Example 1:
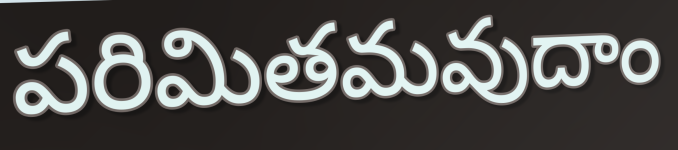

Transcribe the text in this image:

పరిమితమవుదాం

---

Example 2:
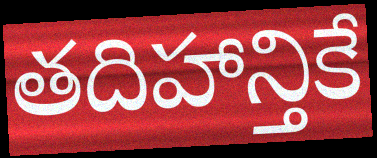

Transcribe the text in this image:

తదిహాన్తికే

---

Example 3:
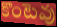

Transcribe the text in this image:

కొంటెవు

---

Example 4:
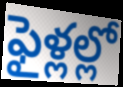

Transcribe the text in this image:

ఫైళ్లల్లో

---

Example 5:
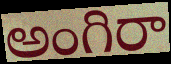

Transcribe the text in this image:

అంగిరా